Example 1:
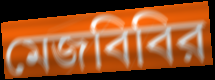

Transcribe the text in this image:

মেজবিবির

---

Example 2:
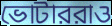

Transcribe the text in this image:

ভোটাররাও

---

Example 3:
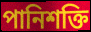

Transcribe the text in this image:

পানিশক্তি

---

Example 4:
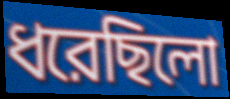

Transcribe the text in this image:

ধরেছিলো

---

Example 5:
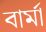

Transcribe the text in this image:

বার্মা